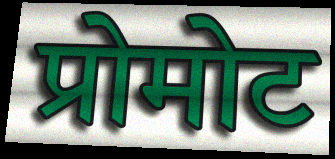
प्रोमोट